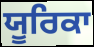
ਯੂਰਿਕਾ